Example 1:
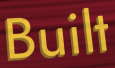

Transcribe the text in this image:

Built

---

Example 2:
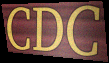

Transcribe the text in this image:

CDC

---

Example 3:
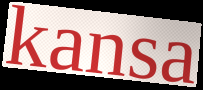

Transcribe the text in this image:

kansa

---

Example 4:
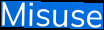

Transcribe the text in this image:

Misuse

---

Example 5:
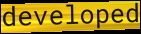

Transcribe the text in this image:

developed